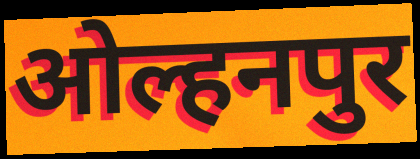
ओल्हनपुर